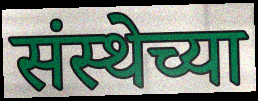
संस्थेच्या